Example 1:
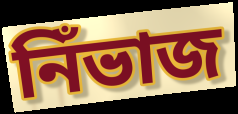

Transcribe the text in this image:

নিঁভাজ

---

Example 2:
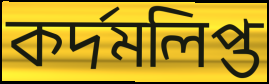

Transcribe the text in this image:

কর্দমলিপ্ত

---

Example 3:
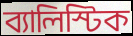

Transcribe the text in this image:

ব্যালিস্টিক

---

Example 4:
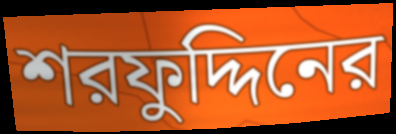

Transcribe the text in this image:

শরফুদ্দিনের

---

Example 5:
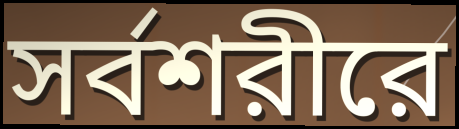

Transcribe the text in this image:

সর্বশরীরে